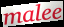
malee